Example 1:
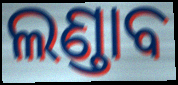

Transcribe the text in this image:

ଲଣ୍ଡାବ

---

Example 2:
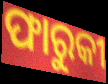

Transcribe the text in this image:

ଫାରୁକୀ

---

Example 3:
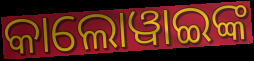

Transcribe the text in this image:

କାଲୋୱାଇଙ୍କ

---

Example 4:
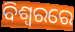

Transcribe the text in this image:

ବିଶ୍ବରରେ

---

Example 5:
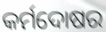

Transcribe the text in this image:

କର୍ମଦୋଷର